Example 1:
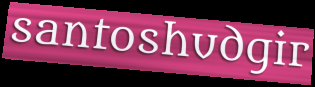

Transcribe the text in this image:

santoshudgir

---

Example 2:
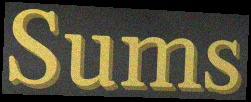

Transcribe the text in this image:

Sums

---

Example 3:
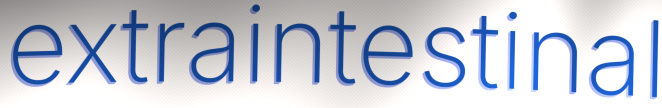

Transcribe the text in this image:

extraintestinal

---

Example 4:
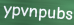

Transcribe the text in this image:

ypvnpubs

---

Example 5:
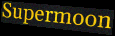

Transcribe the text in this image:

Supermoon